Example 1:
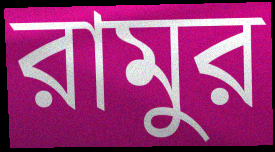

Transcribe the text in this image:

রামুর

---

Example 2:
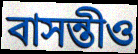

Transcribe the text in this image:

বাসন্তীও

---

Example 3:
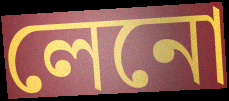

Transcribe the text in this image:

লেনো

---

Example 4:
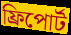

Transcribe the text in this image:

ফ্রিপোর্ট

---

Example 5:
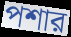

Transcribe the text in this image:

পশার